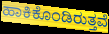
ಹಾಕಿಕೊಂಡಿರುತ್ತವೆ